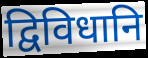
द्विविधानि